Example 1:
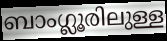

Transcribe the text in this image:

ബാംഗ്ലൂരിലുള്ള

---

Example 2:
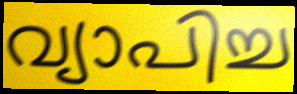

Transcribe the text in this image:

വ്യാപിച്ച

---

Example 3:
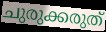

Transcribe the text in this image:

ചുരുക്കരുത്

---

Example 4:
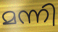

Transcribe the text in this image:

മന്നി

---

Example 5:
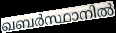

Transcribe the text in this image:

ഖബർസ്ഥാനിൽ